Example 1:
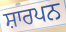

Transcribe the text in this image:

ਸ਼ਾਰਪਨ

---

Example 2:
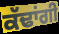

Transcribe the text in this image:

ਕੱਢਾਂਗੀ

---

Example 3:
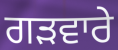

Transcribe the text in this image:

ਗੜਵਾਰੇ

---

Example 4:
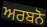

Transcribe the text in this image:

ਅਰਬਨੋ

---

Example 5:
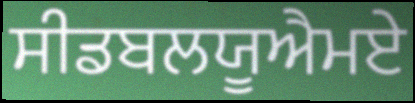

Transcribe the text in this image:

ਸੀਡਬਲਯੂਐਮਏ